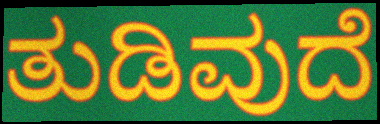
ತುಡಿವುದೆ